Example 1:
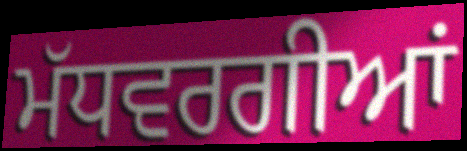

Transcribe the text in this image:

ਮੱਧਵਰਗੀਆਂ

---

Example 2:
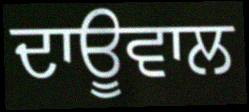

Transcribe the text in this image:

ਦਾਊਵਾਲ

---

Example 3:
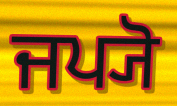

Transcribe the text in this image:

ਜਪ੍ਯੋ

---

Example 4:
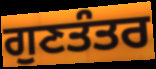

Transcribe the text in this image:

ਗੁਣਤੰਤਰ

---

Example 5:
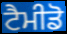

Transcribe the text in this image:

ਟੈਮੀਡੋ